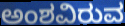
ಅಂಶವಿರುವ